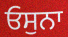
ਓਸੁਨਾ